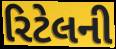
રિટેલની